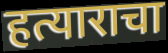
हत्याराचा